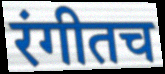
रंगीतच